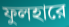
ফুলহারে